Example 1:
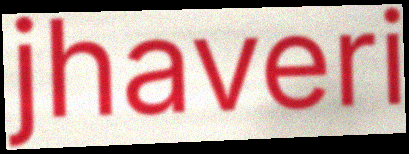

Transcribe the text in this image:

jhaveri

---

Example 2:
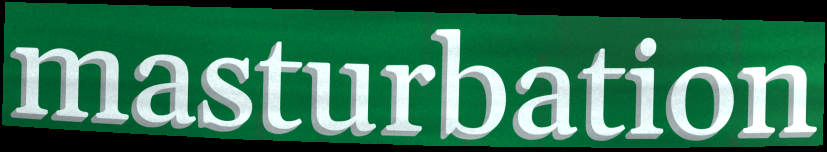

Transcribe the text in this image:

masturbation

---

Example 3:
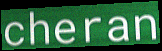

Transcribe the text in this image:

cheran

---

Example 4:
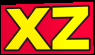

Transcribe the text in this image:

xz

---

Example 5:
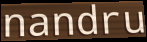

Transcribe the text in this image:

nandru